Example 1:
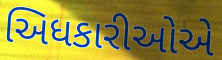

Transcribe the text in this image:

અિધકારીઓએ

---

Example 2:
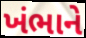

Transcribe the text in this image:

ખંભાને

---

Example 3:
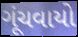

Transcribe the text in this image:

ગૂંચવાયો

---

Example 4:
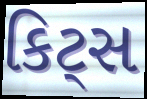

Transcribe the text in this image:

કિટ્સ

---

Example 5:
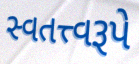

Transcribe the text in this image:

સ્વતત્ત્વરૂપે